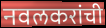
नवलकरांची